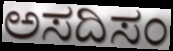
ಅಸದಿಸಂ